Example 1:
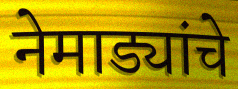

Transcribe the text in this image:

नेमाड्यांचे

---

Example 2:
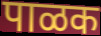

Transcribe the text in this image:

पाळक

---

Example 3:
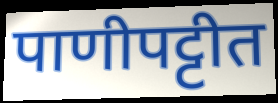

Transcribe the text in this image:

पाणीपट्टीत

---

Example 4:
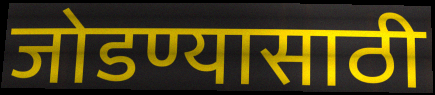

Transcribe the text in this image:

जोडण्यासाठी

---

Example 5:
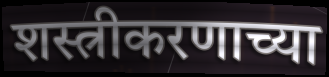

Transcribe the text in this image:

शस्त्रीकरणाच्या